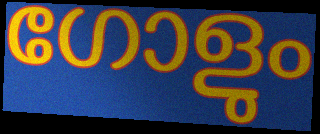
ഗോളും